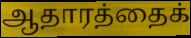
ஆதாரத்தைக்